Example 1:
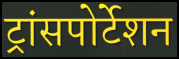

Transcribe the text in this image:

ट्रांसपोर्टेशन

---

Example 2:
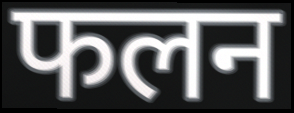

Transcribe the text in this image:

फलन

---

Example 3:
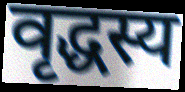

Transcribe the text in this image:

वृद्धस्य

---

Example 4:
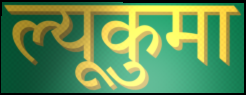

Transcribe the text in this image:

ल्यूकुमा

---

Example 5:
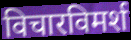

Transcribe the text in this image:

विचारविमर्श